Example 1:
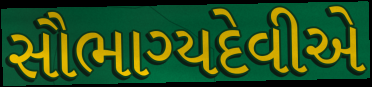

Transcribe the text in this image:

સૌભાગ્યદેવીએ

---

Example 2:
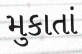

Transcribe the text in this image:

મુકાતાં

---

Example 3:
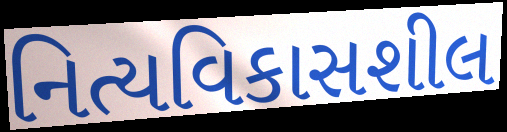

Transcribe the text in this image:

નિત્યવિકાસશીલ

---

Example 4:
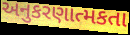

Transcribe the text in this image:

અનુકરણાત્મકતા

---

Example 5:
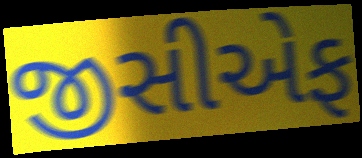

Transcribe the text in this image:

જીસીએફ